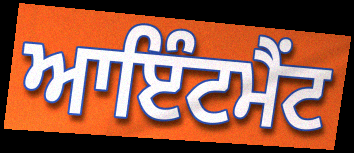
ਆਇੰਟਮੈਂਟ